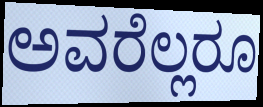
ಅವರೆಲ್ಲರೂ